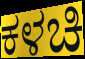
ಕಳಚಿ